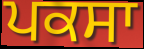
ਪਕਸਾ